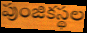
పుంజికస్థల